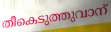
തീകെടുത്തുവാന്